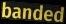
banded